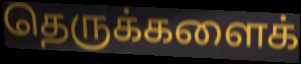
தெருக்களைக்